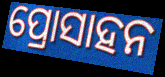
ପ୍ରୋସାହନ